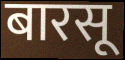
बारसू